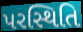
પરસ્થિતિ